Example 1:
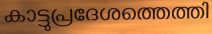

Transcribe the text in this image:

കാട്ടുപ്രദേശത്തെത്തി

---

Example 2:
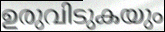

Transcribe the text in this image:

ഉരുവിടുകയും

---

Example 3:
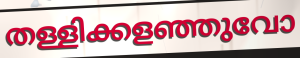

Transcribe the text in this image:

തള്ളിക്കളഞ്ഞുവോ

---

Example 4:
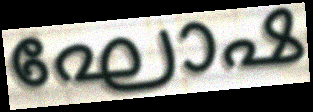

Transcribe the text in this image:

ഘോഷ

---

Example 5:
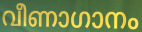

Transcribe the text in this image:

വീണാഗാനം